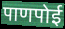
पाणपोई